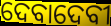
ଦେବାଦେବୀ